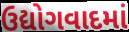
ઉદ્યોગવાદમાં